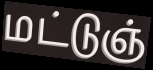
மட்டுஞ்